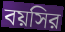
বয়সির